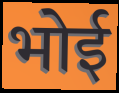
भोई